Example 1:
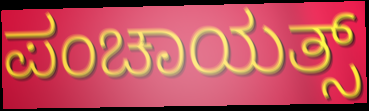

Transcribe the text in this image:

ಪಂಚಾಯತ್ಸ್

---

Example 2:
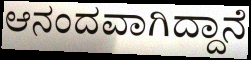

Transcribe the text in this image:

ಆನಂದವಾಗಿದ್ದಾನೆ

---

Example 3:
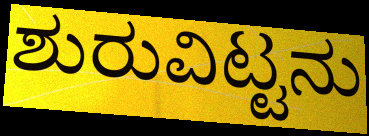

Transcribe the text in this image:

ಶುರುವಿಟ್ಟನು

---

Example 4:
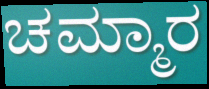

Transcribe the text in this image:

ಚಮ್ಮಾರ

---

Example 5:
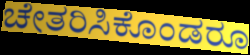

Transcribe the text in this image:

ಚೇತರಿಸಿಕೊಂಡರೂ